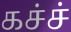
கச்ச்